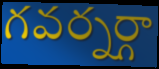
గవర్నర్గా